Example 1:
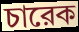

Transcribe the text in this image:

চারেক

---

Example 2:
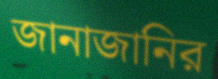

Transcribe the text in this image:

জানাজানির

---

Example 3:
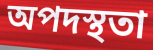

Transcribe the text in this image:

অপদস্থতা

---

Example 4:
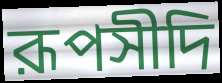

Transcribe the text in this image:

রূপসীদি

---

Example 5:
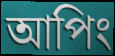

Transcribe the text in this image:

আপিং